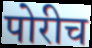
पोरीच